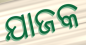
ଯାଜକ